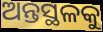
ଅନ୍ତସ୍ଥଳକୁ